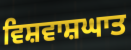
ਵਿਸ਼ਵਾਸ਼ਘਾਤ